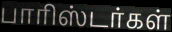
பாரிஸ்டர்கள்